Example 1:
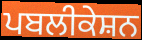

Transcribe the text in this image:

ਪਬਲੀਕੇਸ਼ਨ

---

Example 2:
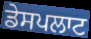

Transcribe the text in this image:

ਡੇਸਪਲਾਟ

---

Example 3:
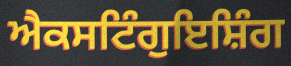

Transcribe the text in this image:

ਐਕਸਟਿੰਗੁਇਸ਼ਿੰਗ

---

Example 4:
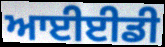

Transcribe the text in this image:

ਆਈਈਡੀ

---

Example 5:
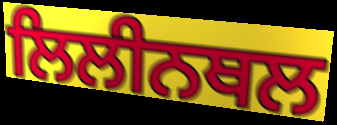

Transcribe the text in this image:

ਲਿਲੀਨਥਲ